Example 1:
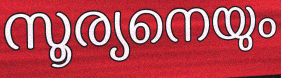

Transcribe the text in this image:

സൂര്യനെയും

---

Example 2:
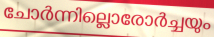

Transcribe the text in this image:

ചോർന്നില്ലൊരോർച്ചയും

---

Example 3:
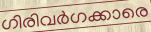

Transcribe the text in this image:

ഗിരിവർഗക്കാരെ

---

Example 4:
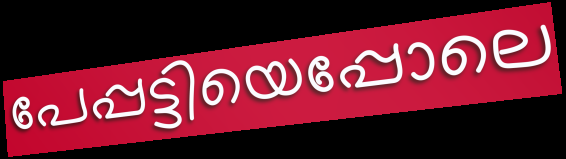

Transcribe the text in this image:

പേപ്പട്ടിയെപ്പോലെ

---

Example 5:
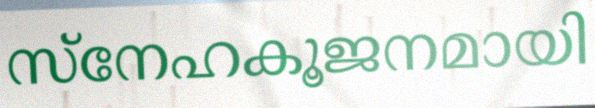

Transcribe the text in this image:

സ്നേഹകൂജനമായി